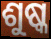
ଶୁଷ୍କ